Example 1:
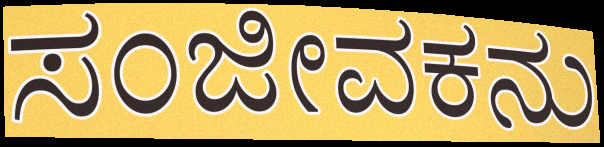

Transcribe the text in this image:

ಸಂಜೀವಕನು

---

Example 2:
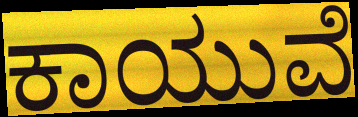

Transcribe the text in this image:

ಕಾಯುವೆ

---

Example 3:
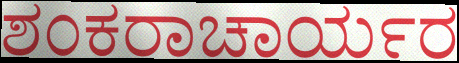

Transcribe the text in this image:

ಶಂಕರಾಚಾರ್ಯರ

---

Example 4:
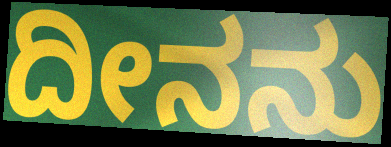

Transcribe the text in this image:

ದೀನನು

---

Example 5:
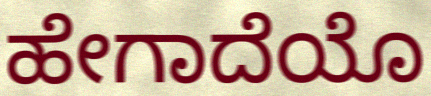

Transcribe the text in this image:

ಹೇಗಾದೆಯೊ